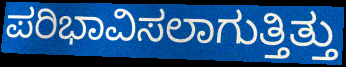
ಪರಿಭಾವಿಸಲಾಗುತ್ತಿತ್ತು